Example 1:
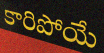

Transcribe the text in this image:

కారిపోయే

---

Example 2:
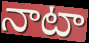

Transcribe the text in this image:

నాటా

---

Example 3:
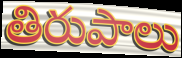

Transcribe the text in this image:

తిరుపాలు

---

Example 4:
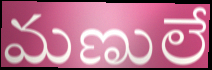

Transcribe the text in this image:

మణులే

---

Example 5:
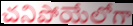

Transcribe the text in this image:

చనిపోయేలోగా